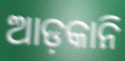
ଆଡ଼କାନି